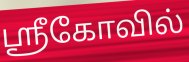
ஸ்ரீகோவில்